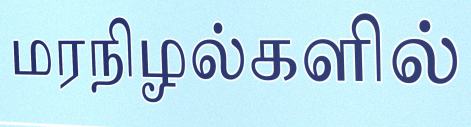
மரநிழல்களில்